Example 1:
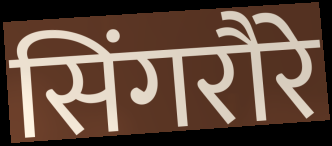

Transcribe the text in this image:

सिंगरौरे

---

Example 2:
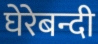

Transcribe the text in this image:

घेरेबन्दी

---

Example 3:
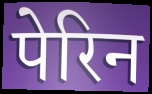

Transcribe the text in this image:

पेरिन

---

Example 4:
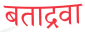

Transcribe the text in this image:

बताद्रवा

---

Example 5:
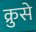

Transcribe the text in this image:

क्रुसे